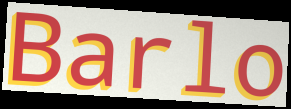
Barlo